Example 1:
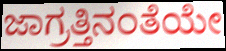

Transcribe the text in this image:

ಜಾಗ್ರತ್ತಿನಂತೆಯೇ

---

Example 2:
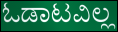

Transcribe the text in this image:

ಓಡಾಟವಿಲ್ಲ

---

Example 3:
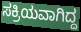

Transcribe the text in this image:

ಸಕ್ರಿಯವಾಗಿದ್ದ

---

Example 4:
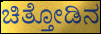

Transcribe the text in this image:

ಚಿತ್ತೋಡಿನ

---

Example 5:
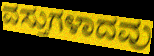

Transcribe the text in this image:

ವಸ್ತುಗಳಾದವು